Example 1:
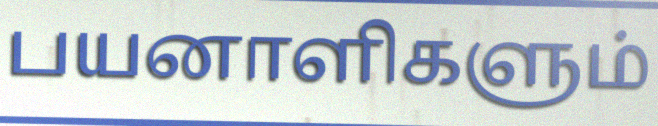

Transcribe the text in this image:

பயனாளிகளும்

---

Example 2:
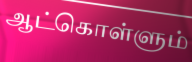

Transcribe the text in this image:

ஆட்கொள்ளும்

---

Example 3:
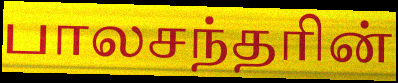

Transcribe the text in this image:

பாலசந்தரின்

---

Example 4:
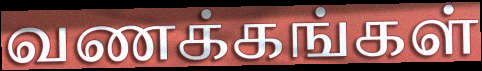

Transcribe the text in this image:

வணக்கங்கள்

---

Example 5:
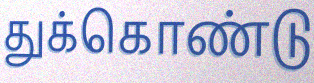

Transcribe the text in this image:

துக்கொண்டு